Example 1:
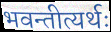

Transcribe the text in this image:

भवन्तीत्यर्थः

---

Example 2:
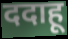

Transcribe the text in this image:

ददाहू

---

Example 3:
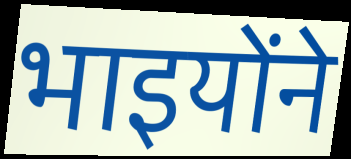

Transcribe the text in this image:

भाइयोंने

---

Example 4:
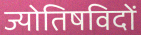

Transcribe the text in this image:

ज्योतिषविदों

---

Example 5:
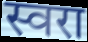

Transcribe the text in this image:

स्‍वरा